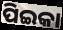
ପିଇକା